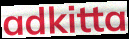
adkitta